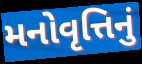
મનોવૃત્તિનું